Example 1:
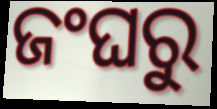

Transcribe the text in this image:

ଜଂଘରୁ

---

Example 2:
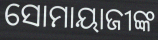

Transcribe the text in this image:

ସୋମାୟାଜୀଙ୍କ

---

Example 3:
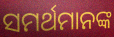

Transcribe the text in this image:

ସମର୍ଥମାନଙ୍କ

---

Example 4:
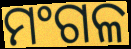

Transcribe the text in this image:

ମଂଗଳ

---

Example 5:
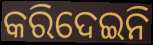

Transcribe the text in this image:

କରିଦେଇନି